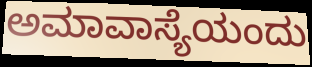
ಅಮಾವಾಸ್ಯೆಯಂದು